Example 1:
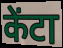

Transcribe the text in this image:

केंटा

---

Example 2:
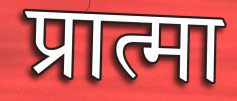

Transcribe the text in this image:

प्रात्मा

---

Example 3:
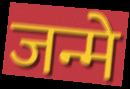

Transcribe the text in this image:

जन्मे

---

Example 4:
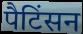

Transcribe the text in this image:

पैटिंसन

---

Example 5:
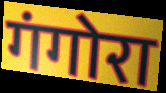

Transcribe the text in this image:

गंगोरा